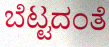
ಬೆಟ್ಟದಂತೆ